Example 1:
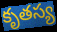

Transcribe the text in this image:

కృతస్య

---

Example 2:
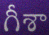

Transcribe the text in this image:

గీశా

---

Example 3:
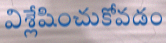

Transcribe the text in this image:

విశ్లేషించుకోవడం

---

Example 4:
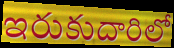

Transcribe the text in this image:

ఇరుకుదారిలో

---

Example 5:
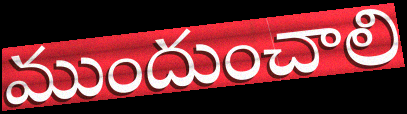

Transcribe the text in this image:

ముందుంచాలి